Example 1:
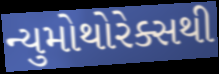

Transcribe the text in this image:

ન્યુમોથોરેક્સથી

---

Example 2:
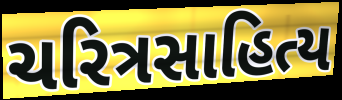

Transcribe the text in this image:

ચરિત્રસાહિત્ય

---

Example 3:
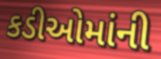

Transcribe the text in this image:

કડીઓમાંની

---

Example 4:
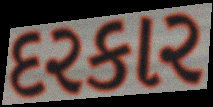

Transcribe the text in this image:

દરકાર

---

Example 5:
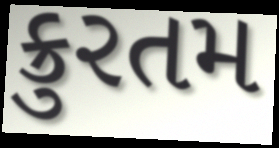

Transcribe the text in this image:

ક્રુરતમ